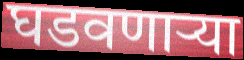
घडवणाऱ्या